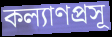
কল্যাণপ্রসূ